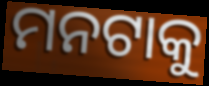
ମନଟାକୁ